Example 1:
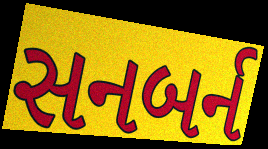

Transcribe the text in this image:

સનબર્ન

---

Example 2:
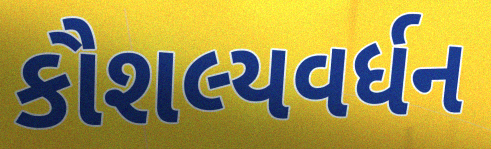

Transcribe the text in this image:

કૌશલ્યવર્ધન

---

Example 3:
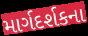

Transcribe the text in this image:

માર્ગદર્શકના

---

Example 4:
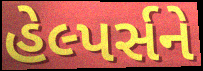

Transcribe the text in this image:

હેલ્પર્સને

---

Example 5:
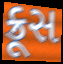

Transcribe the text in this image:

ક્રૂસ